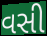
વસી